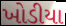
ખોડીયા